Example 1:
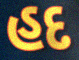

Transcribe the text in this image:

હદ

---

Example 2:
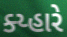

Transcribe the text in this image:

ક્ય્હારે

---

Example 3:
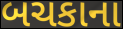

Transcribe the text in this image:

બચકાના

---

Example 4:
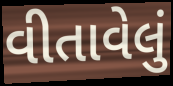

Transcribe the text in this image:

વીતાવેલું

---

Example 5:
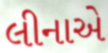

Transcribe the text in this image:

લીનાએ